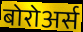
बोरोअर्स